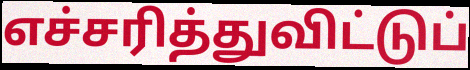
எச்சரித்துவிட்டுப்